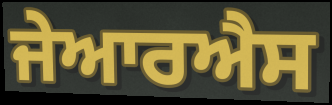
ਜੇਆਰਐਸ